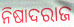
ନିଷାଦରାଜ